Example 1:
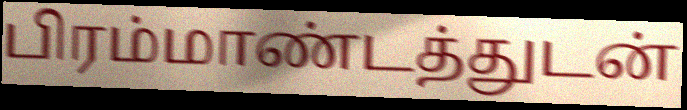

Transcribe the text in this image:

பிரம்மாண்டத்துடன்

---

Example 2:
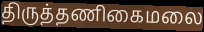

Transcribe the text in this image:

திருத்தணிகைமலை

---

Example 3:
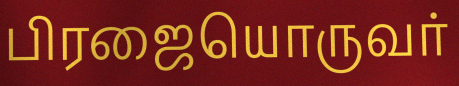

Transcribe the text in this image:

பிரஜையொருவர்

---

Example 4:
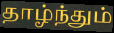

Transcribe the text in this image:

தாழ்ந்தும்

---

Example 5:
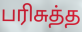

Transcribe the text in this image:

பரிசுத்த